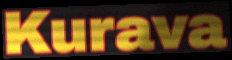
Kurava